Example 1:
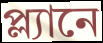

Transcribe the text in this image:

প্ল্যানে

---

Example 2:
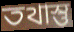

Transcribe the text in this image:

তথাস্তু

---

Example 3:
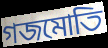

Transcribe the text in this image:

গজমোতি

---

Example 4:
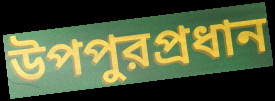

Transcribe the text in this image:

উপপুরপ্রধান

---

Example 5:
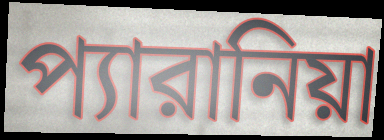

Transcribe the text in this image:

প্যারানিয়া